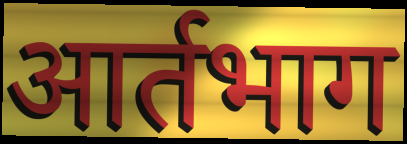
आर्तभाग